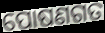
ପୋଷଣଗତ